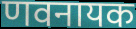
णवनायक